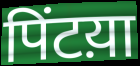
पिंटय़ा